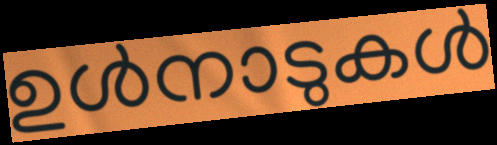
ഉൾനാടുകൾ